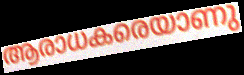
ആരാധകരെയാണു